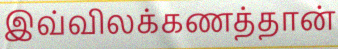
இவ்விலக்கணத்தான்